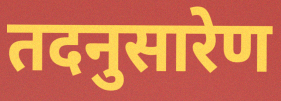
तदनुसारेण